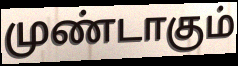
முண்டாகும்